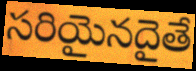
సరియైనదైతే